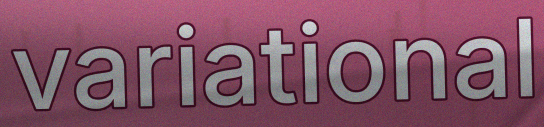
variational